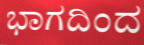
ಭಾಗದಿಂದ